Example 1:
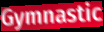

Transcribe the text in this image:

Gymnastic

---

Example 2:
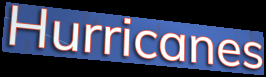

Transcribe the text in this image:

Hurricanes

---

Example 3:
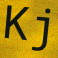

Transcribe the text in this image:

Kj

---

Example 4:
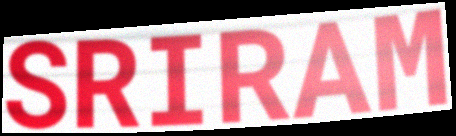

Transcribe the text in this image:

SRIRAM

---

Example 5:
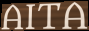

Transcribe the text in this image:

AITA